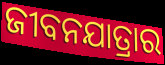
ଜୀବନଯାତ୍ରାର